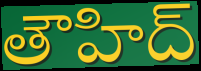
తౌహిద్